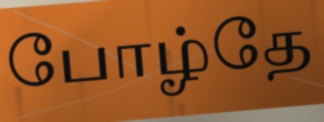
போழ்தே